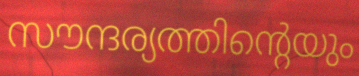
സൗന്ദര്യത്തിന്റെയും